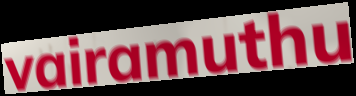
vairamuthu